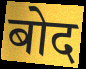
बोद